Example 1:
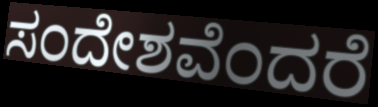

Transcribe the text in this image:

ಸಂದೇಶವೆಂದರೆ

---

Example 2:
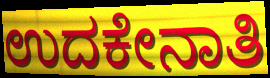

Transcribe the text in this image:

ಉದಕೇನಾತಿ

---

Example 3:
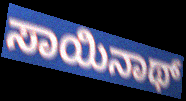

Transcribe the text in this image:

ಸಾಯಿನಾಥ್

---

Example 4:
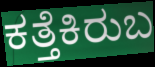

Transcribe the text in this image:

ಕತ್ತೆಕಿರುಬ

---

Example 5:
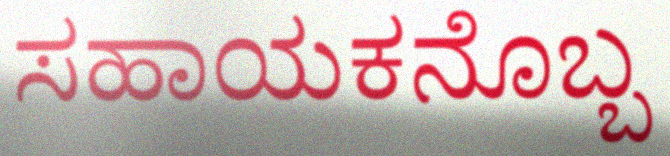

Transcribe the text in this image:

ಸಹಾಯಕನೊಬ್ಬ